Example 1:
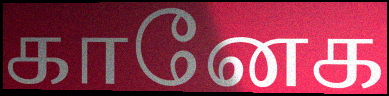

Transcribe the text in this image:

கானேக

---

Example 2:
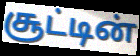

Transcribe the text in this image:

சூட்டின்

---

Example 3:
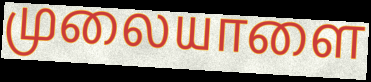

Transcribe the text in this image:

முலையாளை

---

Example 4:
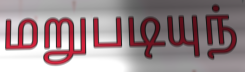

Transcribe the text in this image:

மறுபடியுந்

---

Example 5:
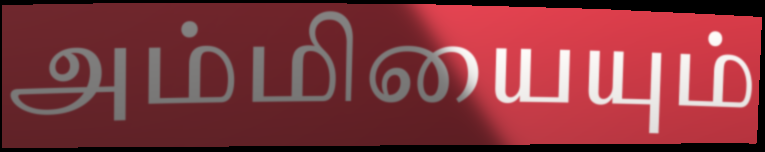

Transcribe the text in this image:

அம்மியையும்